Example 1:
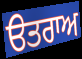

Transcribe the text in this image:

ੳਤਰਾਅ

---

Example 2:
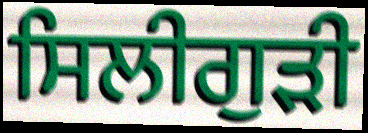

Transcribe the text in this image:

ਸਿਲੀਗੁੜੀ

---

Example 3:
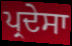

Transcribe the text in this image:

ਪ੍ਰਦੇਸਾ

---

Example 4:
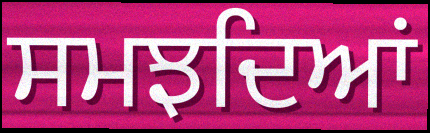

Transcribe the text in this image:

ਸਮਝਦਿਆਂ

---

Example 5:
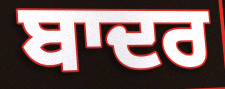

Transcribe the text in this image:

ਬਾਦਰ